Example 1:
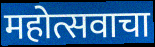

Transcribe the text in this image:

महोत्सवाचा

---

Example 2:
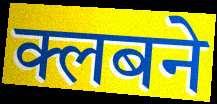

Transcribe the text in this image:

क्‍लबने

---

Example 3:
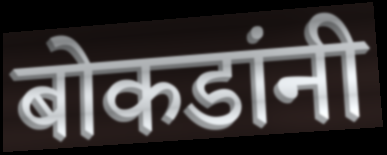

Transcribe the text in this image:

बोकडांनी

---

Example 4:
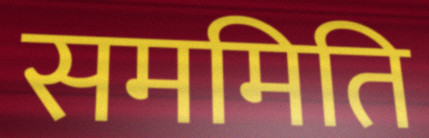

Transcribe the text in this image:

सममिति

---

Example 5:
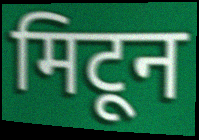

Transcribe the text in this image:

मिटून